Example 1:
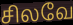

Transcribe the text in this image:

சிலவே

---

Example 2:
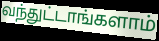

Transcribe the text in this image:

வந்துட்டாங்களாம்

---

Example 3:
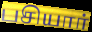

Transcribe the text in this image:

பசியார்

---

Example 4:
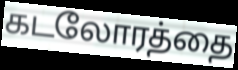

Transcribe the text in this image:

கடலோரத்தை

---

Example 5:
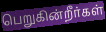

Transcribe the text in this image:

பெறுகின்றீர்கள்